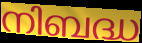
നിബദ്ധ